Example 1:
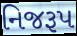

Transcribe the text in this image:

નિજરૂપ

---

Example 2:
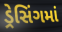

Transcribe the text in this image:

ડ્રેસિંગમાં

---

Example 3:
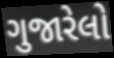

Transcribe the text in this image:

ગુજારેલો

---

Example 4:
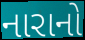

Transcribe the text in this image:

નારાનો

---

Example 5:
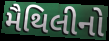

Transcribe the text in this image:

મૈથિલીનો